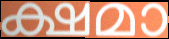
ക്ഷമാ